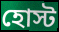
হোস্ট